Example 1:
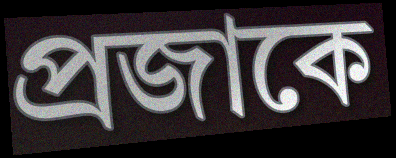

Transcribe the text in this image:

প্রজাকে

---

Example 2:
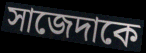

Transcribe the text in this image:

সাজেদাকে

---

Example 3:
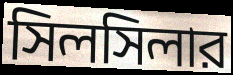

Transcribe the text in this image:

সিলসিলার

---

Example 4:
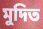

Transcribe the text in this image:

মুদিত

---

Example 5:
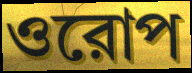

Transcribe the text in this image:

ওরোপ